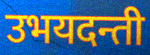
उभयदन्ती